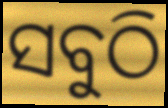
ସବୁଠି